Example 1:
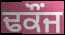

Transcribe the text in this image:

ਢਕੌਂਜ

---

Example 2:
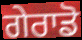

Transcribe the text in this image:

ਗੇਰਾਡੋ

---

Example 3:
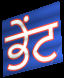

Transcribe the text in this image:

ਭੇਂਟ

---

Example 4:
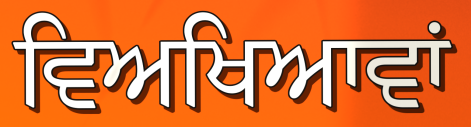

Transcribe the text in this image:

ਵਿਅਖਿਆਵਾਂ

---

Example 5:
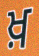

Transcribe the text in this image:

ਖ਼